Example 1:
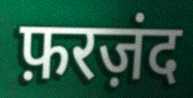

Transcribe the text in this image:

फ़रज़ंद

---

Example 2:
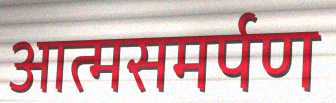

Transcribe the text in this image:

आत्मसमर्पण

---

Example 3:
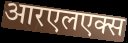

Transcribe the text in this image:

आरएलएक्स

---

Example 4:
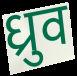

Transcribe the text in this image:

ध्रुव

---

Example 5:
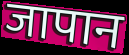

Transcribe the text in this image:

जापान